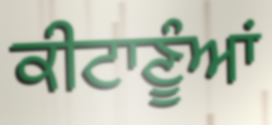
ਕੀਟਾਣੂੰਆਂ